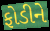
ફોડીને